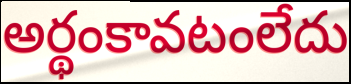
అర్థంకావటంలేదు